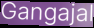
Gangajal